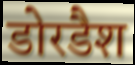
डोरडैश